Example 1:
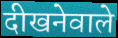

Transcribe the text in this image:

दीखनेवाले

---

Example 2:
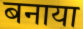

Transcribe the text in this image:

बनाया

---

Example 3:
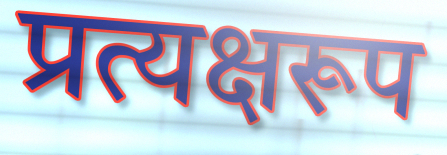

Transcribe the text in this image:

प्रत्यक्षरूप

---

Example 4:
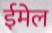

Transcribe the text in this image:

ईमेल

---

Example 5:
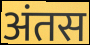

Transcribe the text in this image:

अंतस